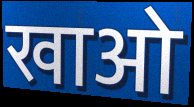
खाओ